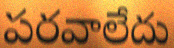
పరవాలేదు